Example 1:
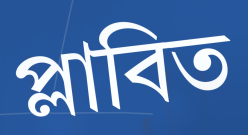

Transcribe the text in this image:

প্লাবিত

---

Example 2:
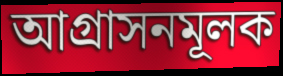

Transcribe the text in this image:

আগ্রাসনমূলক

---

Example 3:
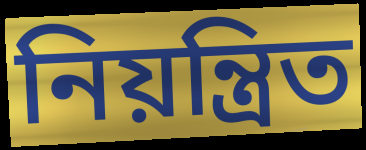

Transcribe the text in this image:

নিয়ন্ত্রিত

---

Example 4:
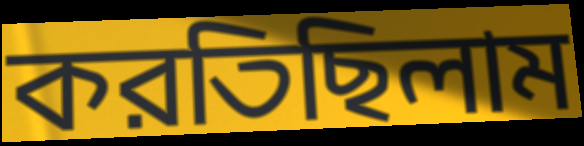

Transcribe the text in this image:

করতিছিলাম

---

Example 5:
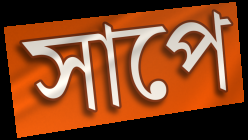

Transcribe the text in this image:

সাপে